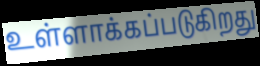
உள்ளாக்கப்படுகிறது